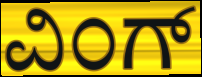
ವಿಂಗ್